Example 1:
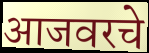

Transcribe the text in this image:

आजवरचे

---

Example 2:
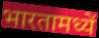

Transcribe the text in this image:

भारतामध्यें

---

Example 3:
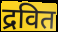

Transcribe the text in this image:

द्रवित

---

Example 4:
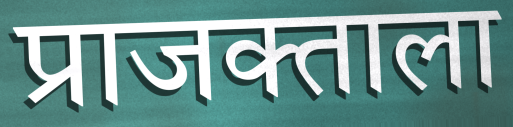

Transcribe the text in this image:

प्राजक्ताला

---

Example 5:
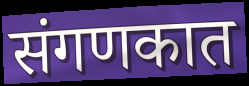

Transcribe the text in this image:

संगणकात